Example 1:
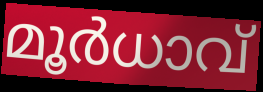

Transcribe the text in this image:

മൂർധാവ്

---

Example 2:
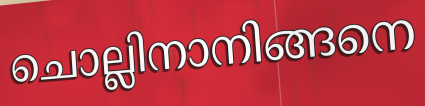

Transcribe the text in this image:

ചൊല്ലിനാനിങ്ങനെ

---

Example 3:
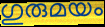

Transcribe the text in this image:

ഗുരുമയം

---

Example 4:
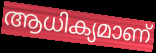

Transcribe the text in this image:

ആധിക്യമാണ്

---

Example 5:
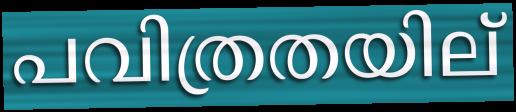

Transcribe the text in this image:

പവിത്രതയില്